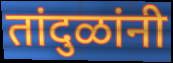
तांदुळांनी